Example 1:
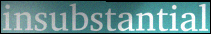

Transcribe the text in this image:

insubstantial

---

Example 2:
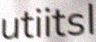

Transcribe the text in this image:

utiitsl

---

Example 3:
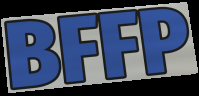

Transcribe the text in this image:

BFFP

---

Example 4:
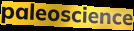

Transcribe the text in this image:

paleoscience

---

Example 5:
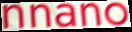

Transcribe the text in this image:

nnano